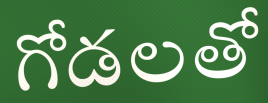
గోడలతో